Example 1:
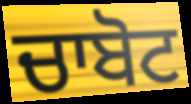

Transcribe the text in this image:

ਚਾਬੋਟ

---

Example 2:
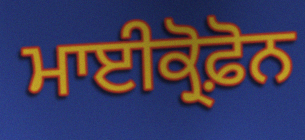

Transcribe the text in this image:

ਮਾਈਕ੍ਰੋਫ਼ੋਨ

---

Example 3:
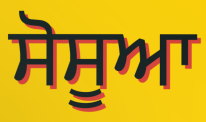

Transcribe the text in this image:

ਸੋਸੂਆ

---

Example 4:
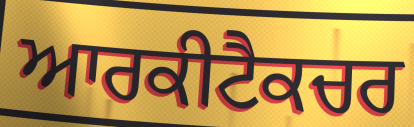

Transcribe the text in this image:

ਆਰਕੀਟੈਕਚਰ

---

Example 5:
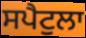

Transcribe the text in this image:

ਸਪੈਟੁਲਾ